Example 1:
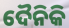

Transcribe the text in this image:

ଦୈନିକି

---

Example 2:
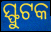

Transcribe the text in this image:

ସ୍ଫୁଟକ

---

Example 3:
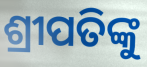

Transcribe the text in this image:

ଶ୍ରୀପତିଙ୍କୁ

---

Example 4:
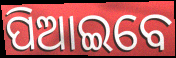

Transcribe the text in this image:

ପିଆଇବେ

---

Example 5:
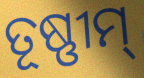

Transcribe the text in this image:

ତୂଷ୍ଣୀମ୍